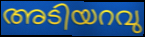
അടിയറവു